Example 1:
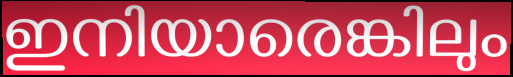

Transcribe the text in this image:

ഇനിയാരെങ്കിലും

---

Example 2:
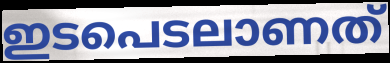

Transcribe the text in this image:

ഇടപെടലാണത്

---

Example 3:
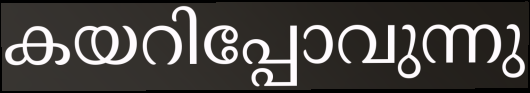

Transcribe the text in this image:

കയറിപ്പോവുന്നു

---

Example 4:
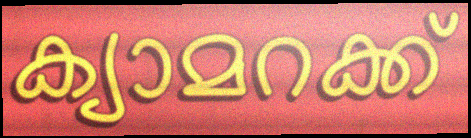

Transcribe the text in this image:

ക്യാമറക്ക്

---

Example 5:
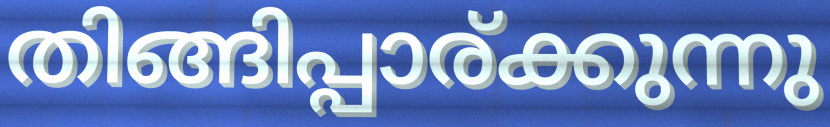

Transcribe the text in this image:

തിങ്ങിപ്പാര്ക്കുന്നു